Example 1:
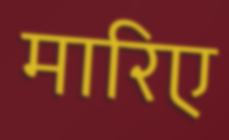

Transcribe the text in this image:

मारिए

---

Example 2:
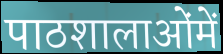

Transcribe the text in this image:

पाठशालाओंमें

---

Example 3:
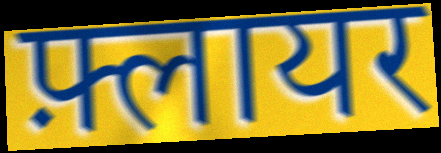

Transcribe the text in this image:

फ़्लायर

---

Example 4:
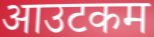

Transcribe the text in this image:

आउटकम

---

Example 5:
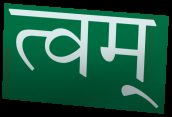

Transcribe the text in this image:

त्वम्